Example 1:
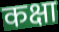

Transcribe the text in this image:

कक्षा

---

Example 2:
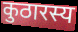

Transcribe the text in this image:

कुठारस्य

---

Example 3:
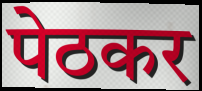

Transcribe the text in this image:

पेठकर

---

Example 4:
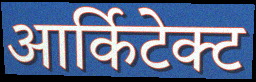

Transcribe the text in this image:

आर्किटेक्ट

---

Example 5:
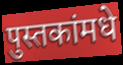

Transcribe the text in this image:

पुस्तकांमधे